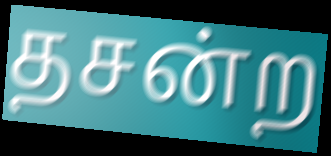
தசன்ற